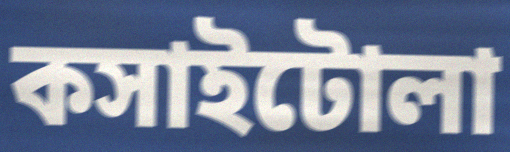
কসাইটোলা